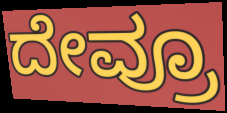
ದೇವ್ರೂ